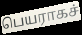
பெயராகச்